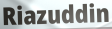
Riazuddin